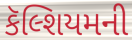
કૅલ્શિયમની